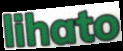
lihato